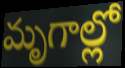
మృగాల్లో